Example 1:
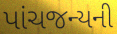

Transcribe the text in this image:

પાંચજન્યની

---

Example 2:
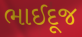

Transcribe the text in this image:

ભાઈદૂજ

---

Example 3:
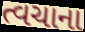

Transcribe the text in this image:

ત્વચાના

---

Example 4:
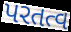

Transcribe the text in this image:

પરતત્વ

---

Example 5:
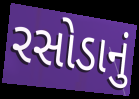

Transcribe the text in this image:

રસોડાનું